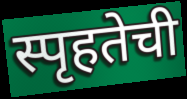
स्पृहतेची